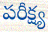
పరీక్ష్య